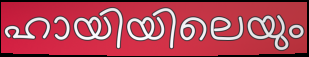
ഹായിയിലെയും